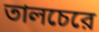
তালচেরে